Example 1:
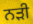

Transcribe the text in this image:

ਨੜੀ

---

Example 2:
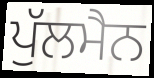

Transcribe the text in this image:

ਪੁੱਲਮੈਨ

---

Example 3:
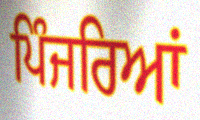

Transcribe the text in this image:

ਪਿੰਜਰਿਆਂ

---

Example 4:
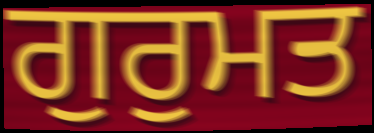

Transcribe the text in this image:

ਗੁਰੁਮਤ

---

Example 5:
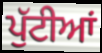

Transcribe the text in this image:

ਪੁੱਟੀਆਂ